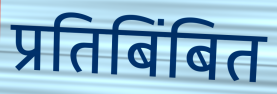
प्रतिबिंबित